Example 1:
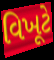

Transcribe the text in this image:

વિખૂટે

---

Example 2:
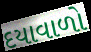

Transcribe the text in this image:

દયાવાળો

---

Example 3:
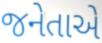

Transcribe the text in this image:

જનેતાએ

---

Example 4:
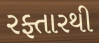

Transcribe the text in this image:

રફ્તારથી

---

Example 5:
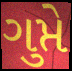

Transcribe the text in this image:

ગુપ્તે